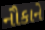
નૌકાને